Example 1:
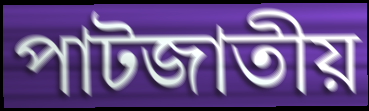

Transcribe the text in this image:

পাটজাতীয়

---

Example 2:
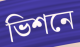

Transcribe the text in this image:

ভিশনে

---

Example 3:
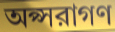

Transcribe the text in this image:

অপ্সরাগণ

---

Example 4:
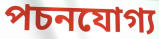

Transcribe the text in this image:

পচনযোগ্য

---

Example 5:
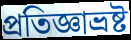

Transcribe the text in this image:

প্রতিজ্ঞাভ্রষ্ট